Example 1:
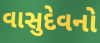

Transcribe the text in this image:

વાસુદેવનો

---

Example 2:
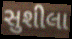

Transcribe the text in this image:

સુશીલા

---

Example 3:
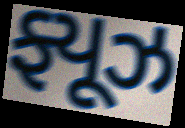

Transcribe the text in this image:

ફ્યૂઝ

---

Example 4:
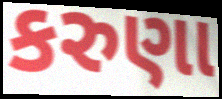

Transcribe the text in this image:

કરુણા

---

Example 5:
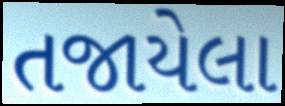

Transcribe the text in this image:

તજાયેલા